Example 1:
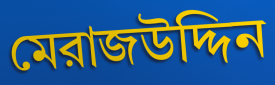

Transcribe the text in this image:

মেরাজউদ্দিন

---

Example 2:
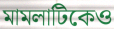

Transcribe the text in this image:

মামলাটিকেও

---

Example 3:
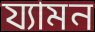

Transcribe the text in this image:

য্যামন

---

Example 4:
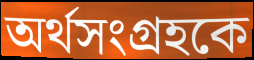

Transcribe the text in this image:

অর্থসংগ্রহকে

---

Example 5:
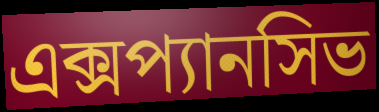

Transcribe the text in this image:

এক্সপ্যানসিভ